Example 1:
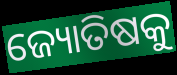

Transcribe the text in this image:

ଜ୍ୟୋତିଷକୁ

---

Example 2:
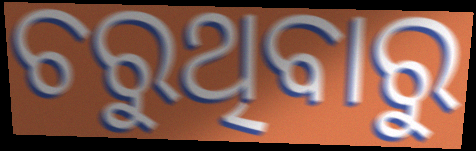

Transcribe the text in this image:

ଚରୁଥିବାରୁ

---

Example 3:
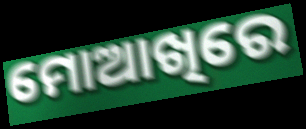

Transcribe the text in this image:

ମୋଆଖିରେ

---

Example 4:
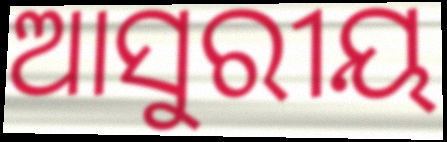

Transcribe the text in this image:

ଆସୁରୀୟ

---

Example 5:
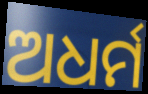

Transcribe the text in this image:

ଅଧର୍ମ